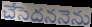
చేసెదననెను